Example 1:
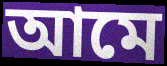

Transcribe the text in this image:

আমে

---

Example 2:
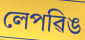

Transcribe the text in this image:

লেপৱিঙ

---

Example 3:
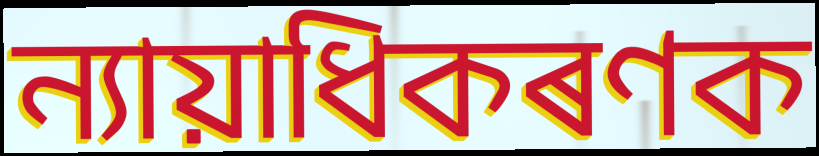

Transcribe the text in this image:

ন্যায়াধিকৰণক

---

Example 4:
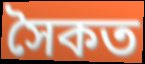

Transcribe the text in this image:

সৈকত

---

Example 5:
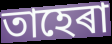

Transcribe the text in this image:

তাহেৰা